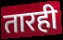
तारही